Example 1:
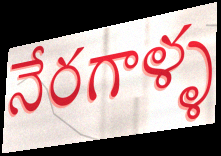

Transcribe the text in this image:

నేరగాళ్ళ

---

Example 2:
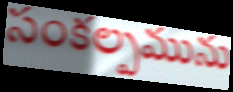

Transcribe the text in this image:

సంకల్పమును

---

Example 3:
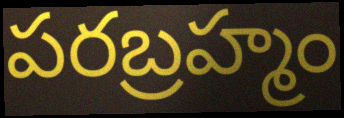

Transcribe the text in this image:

పరబ్రహ్మం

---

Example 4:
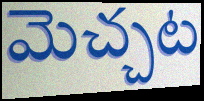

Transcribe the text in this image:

మెచ్చట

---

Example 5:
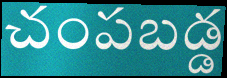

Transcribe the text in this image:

చంపబడ్డ